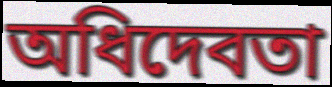
অধিদেবতা